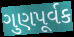
ગુણપૂર્વક